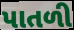
પાતળી